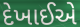
દેખાઈએ